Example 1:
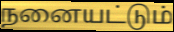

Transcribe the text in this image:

நனையட்டும்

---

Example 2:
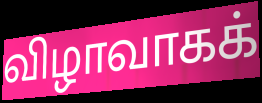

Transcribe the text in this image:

விழாவாகக்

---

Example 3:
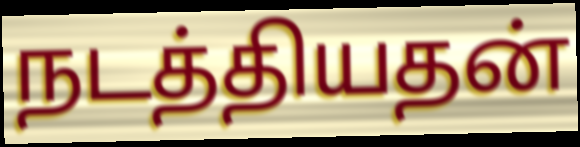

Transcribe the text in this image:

நடத்தியதன்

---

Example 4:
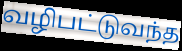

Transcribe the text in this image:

வழிபட்டுவந்த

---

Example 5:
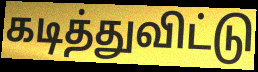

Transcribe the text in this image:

கடித்துவிட்டு